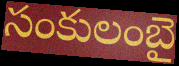
సంకులంబై